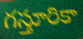
గస్తూరికా